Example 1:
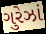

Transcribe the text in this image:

ગુરેઝાં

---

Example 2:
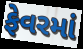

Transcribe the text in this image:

ફેવરમાં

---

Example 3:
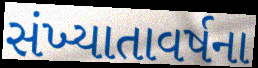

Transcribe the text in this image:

સંખ્યાતાવર્ષના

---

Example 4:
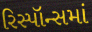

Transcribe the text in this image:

રિસ્પૉન્સમાં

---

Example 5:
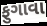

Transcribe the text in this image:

ફુગાવા